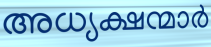
അധ്യക്ഷന്മാർ